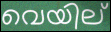
വെയില്